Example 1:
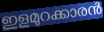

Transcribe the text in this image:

ഇളമുറക്കാരൻ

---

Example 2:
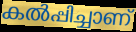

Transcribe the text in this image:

കൽപ്പിച്ചാണ്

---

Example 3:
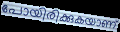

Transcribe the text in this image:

പോയിരിക്കുകയാണ്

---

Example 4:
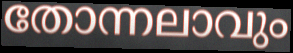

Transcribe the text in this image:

തോന്നലാവും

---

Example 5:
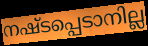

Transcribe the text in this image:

നഷ്ടപ്പെടാനില്ല